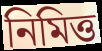
নিমিত্ত